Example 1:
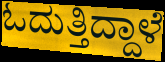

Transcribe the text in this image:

ಓದುತ್ತಿದ್ದಾಳೆ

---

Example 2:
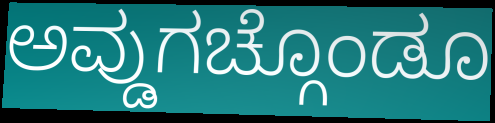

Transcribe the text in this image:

ಅವ್ಡುಗಚ್ಗೊಂಡೂ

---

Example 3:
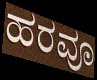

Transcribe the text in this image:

ಹರವೂ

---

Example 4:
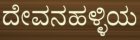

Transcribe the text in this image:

ದೇವನಹಳ್ಳಿಯ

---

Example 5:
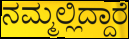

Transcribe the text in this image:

ನಮ್ಮಲ್ಲಿದ್ದಾರೆ